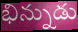
భిన్నుడు